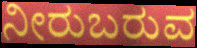
ನೀರುಬರುವ